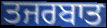
ਤਜਰਬਾਤ